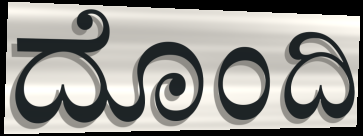
ದೊಂದಿ